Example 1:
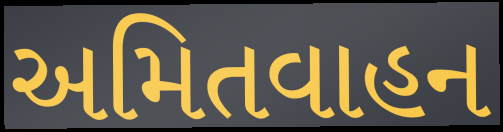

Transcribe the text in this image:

અમિતવાહન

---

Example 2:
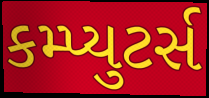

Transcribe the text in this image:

કમ્પ્યુટર્સ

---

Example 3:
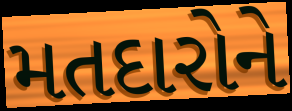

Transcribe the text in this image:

મતદારોને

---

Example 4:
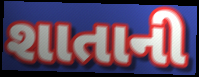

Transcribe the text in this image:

શાતાની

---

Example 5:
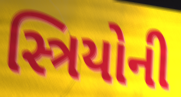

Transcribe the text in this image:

સ્ત્રિયોની